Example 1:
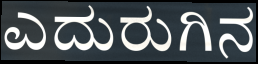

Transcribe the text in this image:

ಎದುರುಗಿನ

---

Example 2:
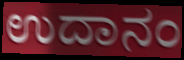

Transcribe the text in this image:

ಉದಾನಂ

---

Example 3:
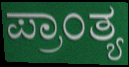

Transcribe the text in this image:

ಪ್ರಾಂತ್ಯ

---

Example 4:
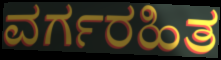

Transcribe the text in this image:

ವರ್ಗರಹಿತ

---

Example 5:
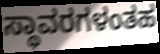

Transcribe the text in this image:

ಸ್ಥಾವರಗಳಂತಹ